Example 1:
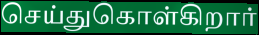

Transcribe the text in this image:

செய்துகொள்கிறார்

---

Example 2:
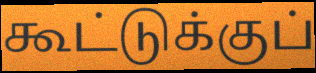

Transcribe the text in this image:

கூட்டுக்குப்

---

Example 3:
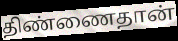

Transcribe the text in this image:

திண்ணைதான்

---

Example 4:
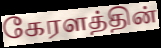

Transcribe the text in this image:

கேரளத்தின்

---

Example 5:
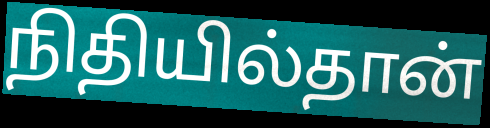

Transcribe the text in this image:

நிதியில்தான்